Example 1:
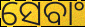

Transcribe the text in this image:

ସେବାଂ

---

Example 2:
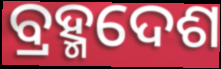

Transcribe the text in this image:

ବ୍ରହ୍ମଦେଶ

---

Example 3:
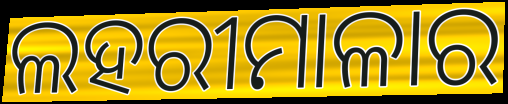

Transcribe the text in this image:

ଲହରୀମାଳାର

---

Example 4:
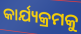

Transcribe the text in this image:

କାର୍ଯ୍ୟକ୍ରମକୁ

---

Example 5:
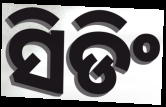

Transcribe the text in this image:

ସିଡିଂ